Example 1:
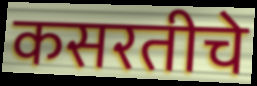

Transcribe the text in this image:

कसरतीचे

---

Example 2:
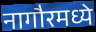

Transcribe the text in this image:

नागौरमध्ये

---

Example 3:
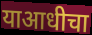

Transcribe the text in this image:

याआधीचा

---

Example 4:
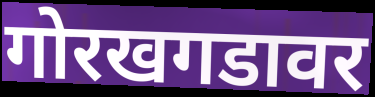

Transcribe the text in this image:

गोरखगडावर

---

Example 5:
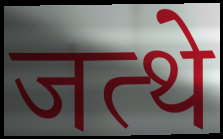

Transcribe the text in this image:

जत्थे